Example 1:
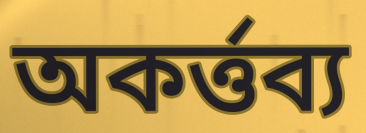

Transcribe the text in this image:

অকর্ত্তব্য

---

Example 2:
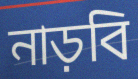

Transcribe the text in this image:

নাড়বি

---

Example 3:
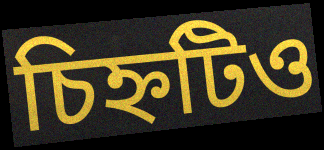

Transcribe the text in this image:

চিহ্নটিও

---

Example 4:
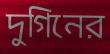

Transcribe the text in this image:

দুগিনের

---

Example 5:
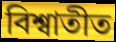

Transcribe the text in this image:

বিশ্বাতীত